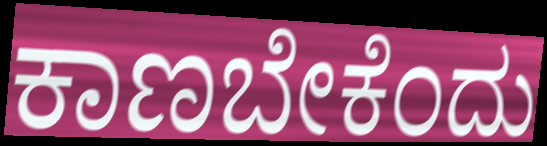
ಕಾಣಬೇಕೆಂದು